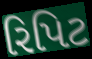
રિપિટ